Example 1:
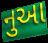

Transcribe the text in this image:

નુઆ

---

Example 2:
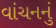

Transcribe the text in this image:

વાંચનનું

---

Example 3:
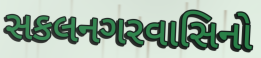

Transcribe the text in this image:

સકલનગરવાસિનો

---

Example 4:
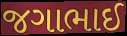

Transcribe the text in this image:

જગાભાઈ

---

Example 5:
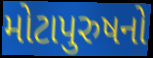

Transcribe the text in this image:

મોટાપુરુષનો